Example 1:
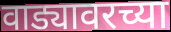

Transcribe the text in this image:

वाड्यावरच्या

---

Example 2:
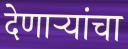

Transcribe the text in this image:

देणाऱ्यांचा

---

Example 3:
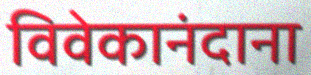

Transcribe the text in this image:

विवेकानंदाना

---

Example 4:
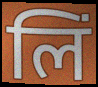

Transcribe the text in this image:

लिं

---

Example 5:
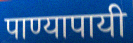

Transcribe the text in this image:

पाण्यापायी